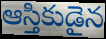
ఆస్తికుడైన